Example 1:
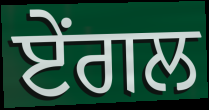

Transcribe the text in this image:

ਏਂਗਲ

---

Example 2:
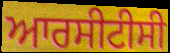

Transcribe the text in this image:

ਆਰਸੀਟੀਸੀ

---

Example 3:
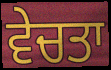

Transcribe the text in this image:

ਵੇਚਤਾ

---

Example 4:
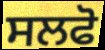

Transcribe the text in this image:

ਸਲਫੋ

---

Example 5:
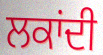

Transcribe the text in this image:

ਲਕਾਂਦੀ